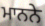
ਮਾਨਨੇ